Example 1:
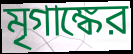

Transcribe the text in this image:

মৃগাঙ্কের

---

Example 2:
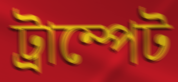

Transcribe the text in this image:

ট্রাম্পেট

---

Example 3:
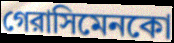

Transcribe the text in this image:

গেরাসিমেনকো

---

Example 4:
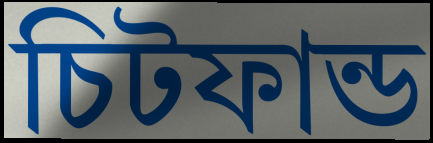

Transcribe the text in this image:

চিটফান্ড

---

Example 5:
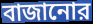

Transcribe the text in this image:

বাজানোর